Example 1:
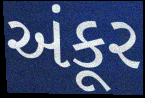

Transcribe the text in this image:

અંકૂર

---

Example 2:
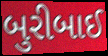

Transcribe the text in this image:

બુરીબાઈ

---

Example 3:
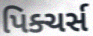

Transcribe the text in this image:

પિક્ચર્સ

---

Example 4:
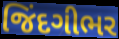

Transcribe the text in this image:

જિંદગીભર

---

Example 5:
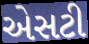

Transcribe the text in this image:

એસટી